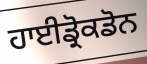
ਹਾਈਡ੍ਰੋਕਡੋਨ